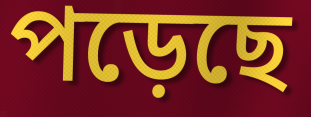
পড়েছে